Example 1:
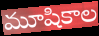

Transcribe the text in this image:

మూషికాల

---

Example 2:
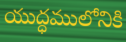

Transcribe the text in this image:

యుద్ధములోనికి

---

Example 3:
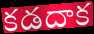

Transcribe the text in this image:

కడదాక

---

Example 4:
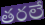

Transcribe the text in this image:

తరలే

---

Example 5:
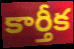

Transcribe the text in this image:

కార్తీక